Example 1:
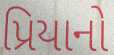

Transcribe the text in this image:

પ્રિયાનો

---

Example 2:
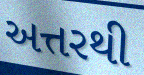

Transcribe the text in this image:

અત્તરથી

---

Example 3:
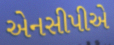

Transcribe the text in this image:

એનસીપીએ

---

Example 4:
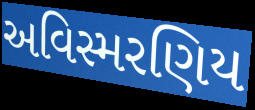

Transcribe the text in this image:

અવિસ્મરણિય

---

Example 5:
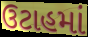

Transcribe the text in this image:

ઉટાહમાં